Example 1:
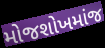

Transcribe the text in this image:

મોજશોખમાંજ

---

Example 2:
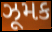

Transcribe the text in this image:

ઝૂમક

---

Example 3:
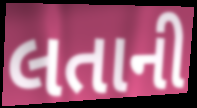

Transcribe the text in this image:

લતાની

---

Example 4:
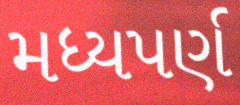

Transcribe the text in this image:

મધ્યપર્ણ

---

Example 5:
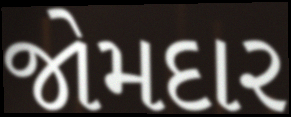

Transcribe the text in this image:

જોમદાર